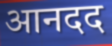
आनदद